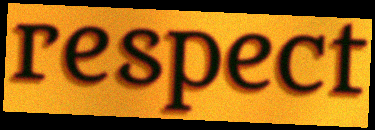
respect